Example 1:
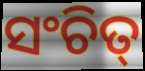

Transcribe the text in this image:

ସଂଚିତ୍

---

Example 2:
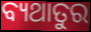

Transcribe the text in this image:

ବ୍ୟଥାତୁର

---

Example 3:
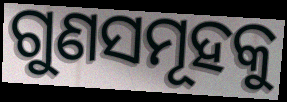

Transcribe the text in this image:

ଗୁଣସମୂହକୁ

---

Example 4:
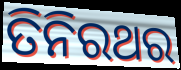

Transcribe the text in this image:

ତିନିରଥର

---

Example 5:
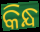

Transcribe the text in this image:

କିନ୍ଧ